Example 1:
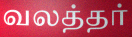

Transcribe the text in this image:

வலத்தர்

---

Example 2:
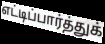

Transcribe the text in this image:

எட்டிப்பார்த்துக்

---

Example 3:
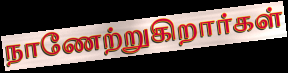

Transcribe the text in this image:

நாணேற்றுகிறார்கள்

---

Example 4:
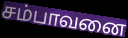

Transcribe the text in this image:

சம்பாவனை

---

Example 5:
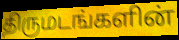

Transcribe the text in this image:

திருமடங்களின்